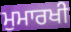
ਮੁਮਾਰਖੀ